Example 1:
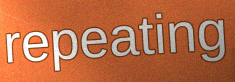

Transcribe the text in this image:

repeating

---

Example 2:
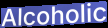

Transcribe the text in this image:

Alcoholic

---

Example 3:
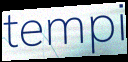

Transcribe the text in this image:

tempi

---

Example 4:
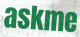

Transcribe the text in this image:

askme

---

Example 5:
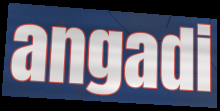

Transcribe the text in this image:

angadi